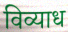
विव्याध